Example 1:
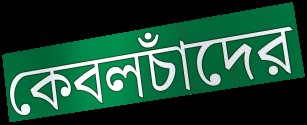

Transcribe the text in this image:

কেবলচাঁদের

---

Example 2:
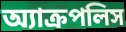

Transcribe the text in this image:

অ্যাক্রপলিস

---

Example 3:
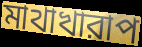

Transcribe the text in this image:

মাথাখারাপ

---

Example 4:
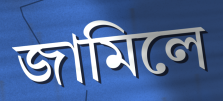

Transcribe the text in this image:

জামিলে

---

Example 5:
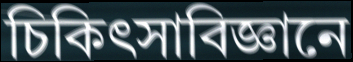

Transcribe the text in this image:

চিকিৎসাবিজ্ঞানে